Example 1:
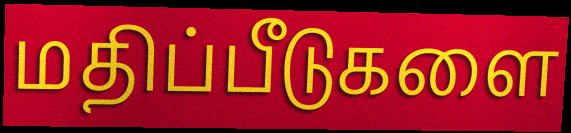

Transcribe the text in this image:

மதிப்பீடுகளை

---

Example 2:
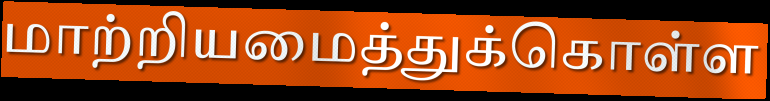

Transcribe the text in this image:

மாற்றியமைத்துக்கொள்ள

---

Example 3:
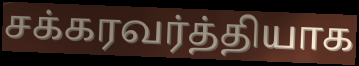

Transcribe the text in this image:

சக்கரவர்த்தியாக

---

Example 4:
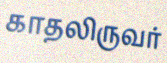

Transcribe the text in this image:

காதலிருவர்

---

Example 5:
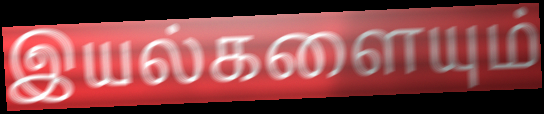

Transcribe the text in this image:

இயல்களையும்